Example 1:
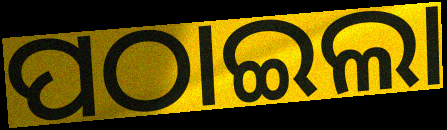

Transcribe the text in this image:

ପଠାଇଲା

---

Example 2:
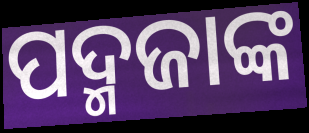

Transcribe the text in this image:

ପଦ୍ମଜାଙ୍କ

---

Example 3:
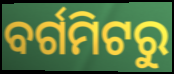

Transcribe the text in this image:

ବର୍ଗମିଟରୁ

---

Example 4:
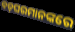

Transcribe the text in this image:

ବଡ଼ଘରମାନଙ୍କରେ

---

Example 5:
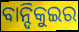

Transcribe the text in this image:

ବାନ୍ଦିକୁଇର